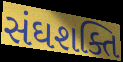
સંઘશક્તિ